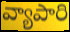
వ్యాపారి